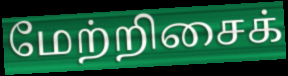
மேற்றிசைக்